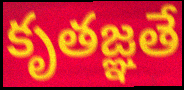
కృతజ్ఞతే